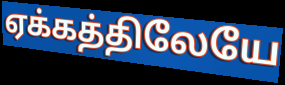
ஏக்கத்திலேயே